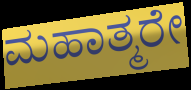
ಮಹಾತ್ಮರೇ